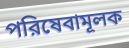
পরিষেবামূলক